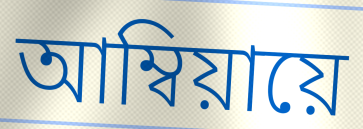
আম্বিয়ায়ে